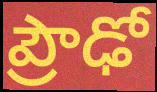
ప్రౌఢో